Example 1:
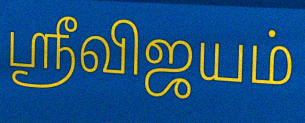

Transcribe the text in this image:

ஸ்ரீவிஜயம்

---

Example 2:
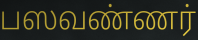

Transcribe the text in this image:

பஸவண்ணர்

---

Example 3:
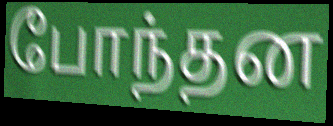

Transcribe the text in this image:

போந்தன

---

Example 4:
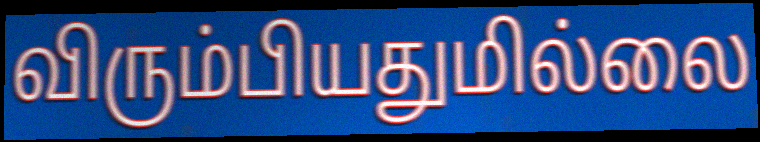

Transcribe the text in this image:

விரும்பியதுமில்லை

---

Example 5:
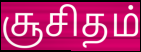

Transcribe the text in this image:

சூசிதம்